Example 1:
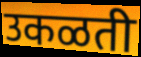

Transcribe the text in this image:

उकळती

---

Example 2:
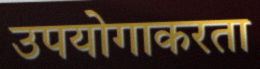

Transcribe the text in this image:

उपयोगाकरता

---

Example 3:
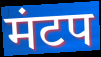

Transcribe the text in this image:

मंटप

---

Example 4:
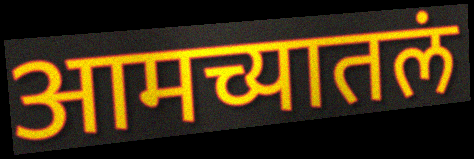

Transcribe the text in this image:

आमच्यातलं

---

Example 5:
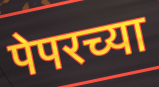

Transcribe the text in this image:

पेपरच्या